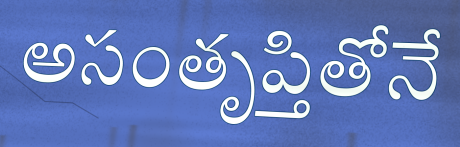
అసంతృప్తితోనే